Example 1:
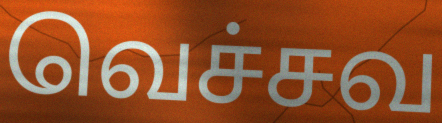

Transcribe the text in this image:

வெச்சவ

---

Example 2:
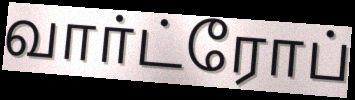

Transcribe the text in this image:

வார்ட்ரோப்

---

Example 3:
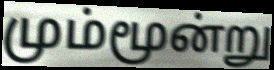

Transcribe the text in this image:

மும்மூன்று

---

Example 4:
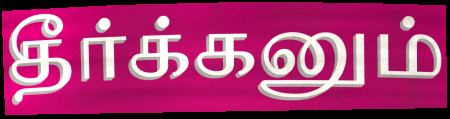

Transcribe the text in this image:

தீர்க்கனும்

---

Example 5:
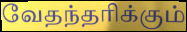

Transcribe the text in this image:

வேதந்தரிக்கும்